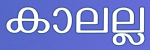
കാലല്ല